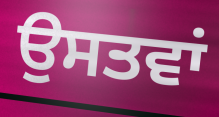
ਉਸਤਵਾਂ